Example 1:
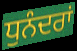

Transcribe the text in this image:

ਧੁਨੰਦਰਾਂ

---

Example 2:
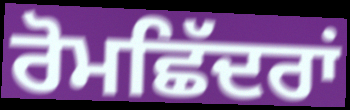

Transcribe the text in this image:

ਰੋਮਛਿੱਦਰਾਂ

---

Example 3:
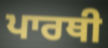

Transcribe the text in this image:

ਪਾਰਥੀ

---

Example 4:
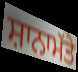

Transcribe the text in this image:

ਸ਼ਾਨਾਮੱਤੇ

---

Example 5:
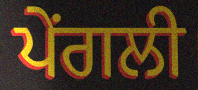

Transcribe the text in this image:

ਪੇਂਗਲੀ